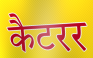
कैटरर